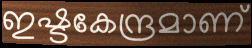
ഇഷ്ടകേന്ദ്രമാണ്